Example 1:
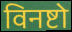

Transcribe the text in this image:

विनष्टो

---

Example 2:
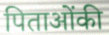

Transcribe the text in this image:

पिताओंकी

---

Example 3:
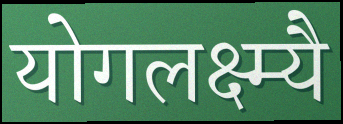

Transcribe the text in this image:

योगलक्ष्म्यै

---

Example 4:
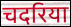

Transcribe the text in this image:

चदरिया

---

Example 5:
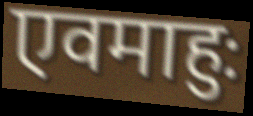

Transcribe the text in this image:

एवमाहुः